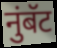
नुंबॅट